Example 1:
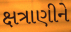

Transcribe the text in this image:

ક્ષત્રાણીને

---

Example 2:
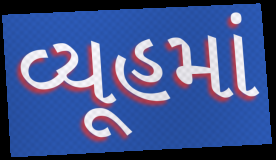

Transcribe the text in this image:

વ્યૂહમાં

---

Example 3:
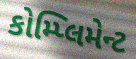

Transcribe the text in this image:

કોમ્પ્લિમેન્ટ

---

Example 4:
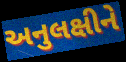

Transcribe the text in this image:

અનુલક્ષીને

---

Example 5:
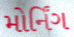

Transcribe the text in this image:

મોર્નિંગ